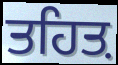
ਤਹਿਤ਼